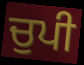
ਚੁਪੀ